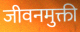
जीवनमुक्ती